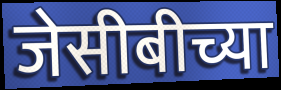
जेसीबीच्या